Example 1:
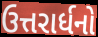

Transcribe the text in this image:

ઉત્તરાર્ધનો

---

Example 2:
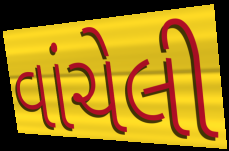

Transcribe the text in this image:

વાંચેલી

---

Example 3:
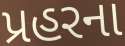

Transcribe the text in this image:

પ્રહરના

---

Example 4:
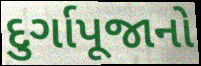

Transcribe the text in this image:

દુર્ગાપૂજાનો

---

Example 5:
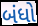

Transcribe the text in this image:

બંધો